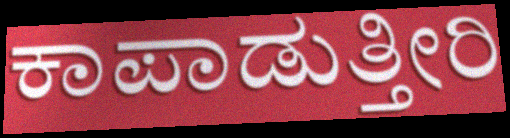
ಕಾಪಾಡುತ್ತೀರಿ